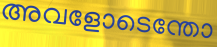
അവളോടെന്തോ